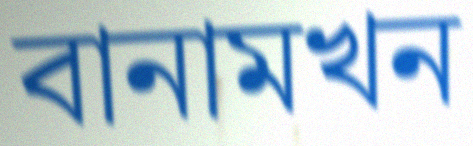
বানামখন